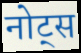
नोट्‌स